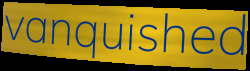
vanquished